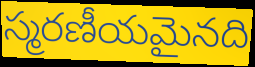
స్మరణీయమైనది